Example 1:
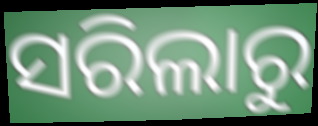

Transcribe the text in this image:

ସରିଲାରୁ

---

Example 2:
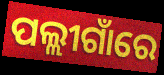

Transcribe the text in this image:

ପଲ୍ଲୀଗାଁରେ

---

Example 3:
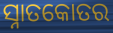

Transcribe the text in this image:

ସ୍ନାତକୋତର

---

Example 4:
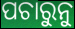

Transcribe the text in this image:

ପଚାରୁନୁ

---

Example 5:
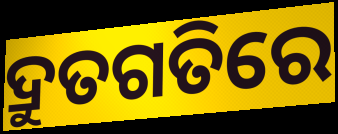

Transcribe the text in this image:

ଦ୍ରୁତଗତିରେ